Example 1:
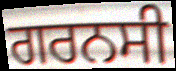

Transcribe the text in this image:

ਗਰਨਸੀ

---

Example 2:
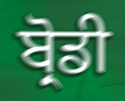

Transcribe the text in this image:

ਬ੍ਰੋਡੀ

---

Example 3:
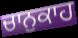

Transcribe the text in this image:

ਚਾਨੁਕਾਹ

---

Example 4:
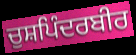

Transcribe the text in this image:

ਚੁਸ਼ਪਿੰਦਰਬੀਰ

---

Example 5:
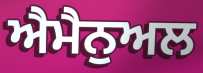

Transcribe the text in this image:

ਐਮੈਨੁਅਲ